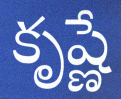
కృష్ణే